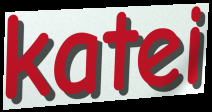
katei